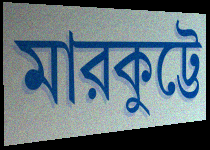
মারকুট্টে